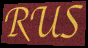
RUS